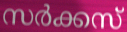
സർക്കസ്